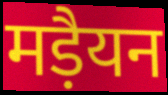
मड़ैयन